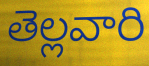
తెల్లవారి